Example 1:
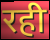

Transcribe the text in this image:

रही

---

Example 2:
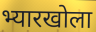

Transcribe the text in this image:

भ्यारखोला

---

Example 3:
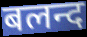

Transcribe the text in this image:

बलन्द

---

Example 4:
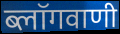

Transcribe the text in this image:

ब्लॉगवाणी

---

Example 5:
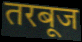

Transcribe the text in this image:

तरबूज